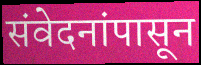
संवेदनांपासून